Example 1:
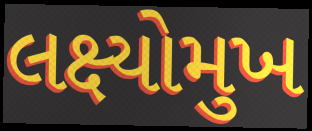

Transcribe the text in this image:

લક્ષ્યોમુખ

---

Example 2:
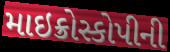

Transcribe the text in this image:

માઇક્રોસ્કોપીની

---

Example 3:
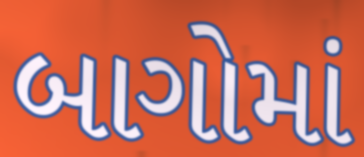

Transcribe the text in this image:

બાગોમાં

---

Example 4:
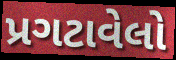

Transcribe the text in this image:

પ્રગટાવેલો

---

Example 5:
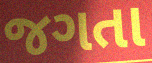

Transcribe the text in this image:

જગતા